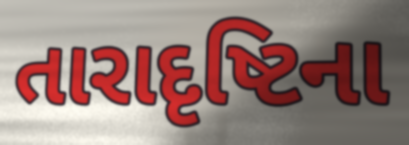
તારાદૃષ્ટિના